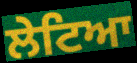
ਲੇਟਿਆ